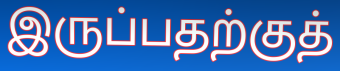
இருப்பதற்குத்